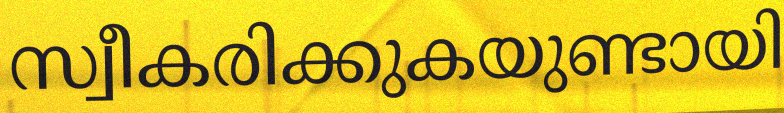
സ്വീകരിക്കുകയുണ്ടായി